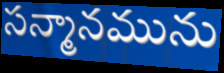
సన్మానమును